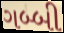
ગબ્બી